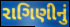
રાગિણીનું